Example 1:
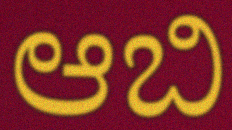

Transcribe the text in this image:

ಆಬಿ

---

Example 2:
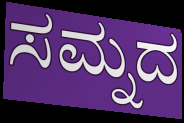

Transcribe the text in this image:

ಸಮ್ನದ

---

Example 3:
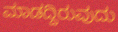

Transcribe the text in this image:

ಮಾಡದ್ದಿರುವುದು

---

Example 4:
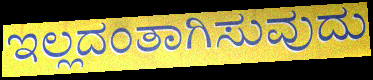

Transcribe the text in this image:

ಇಲ್ಲದಂತಾಗಿಸುವುದು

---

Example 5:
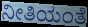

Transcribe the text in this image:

ನೀತಿಯಂತೆ